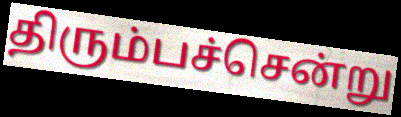
திரும்பச்சென்று